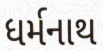
ધર્મનાથ